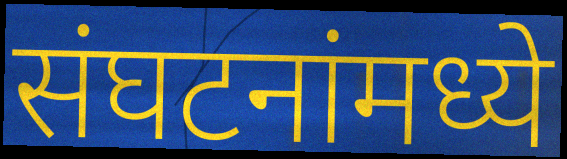
संघटनांमध्ये